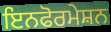
ਇਨਫੋਰਮੇਸ਼ਨ